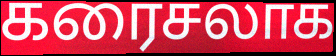
கரைசலாக